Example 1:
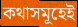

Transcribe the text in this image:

কথাসমূহেই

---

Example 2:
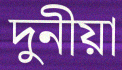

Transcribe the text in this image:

দুনীয়া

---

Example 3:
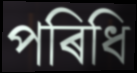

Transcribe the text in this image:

পৰিধি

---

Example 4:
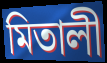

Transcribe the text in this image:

মিতালী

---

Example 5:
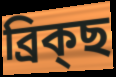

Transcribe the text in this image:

ব্ৰিক্ছ